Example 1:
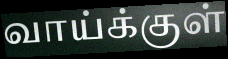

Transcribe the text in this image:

வாய்க்குள்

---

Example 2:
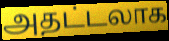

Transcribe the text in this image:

அதட்டலாக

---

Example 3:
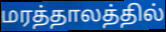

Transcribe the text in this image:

மரத்தாலத்தில்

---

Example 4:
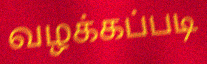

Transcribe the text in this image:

வழக்கப்படி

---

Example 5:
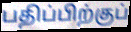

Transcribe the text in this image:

பதிப்பிற்குப்